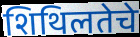
शिथिलतेचे